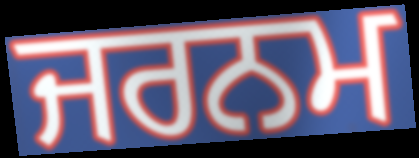
ਜਰਨਮ